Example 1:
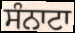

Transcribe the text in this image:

ਸੰਨਾਟਾ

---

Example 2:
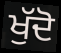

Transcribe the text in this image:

ਖੁੱਦੋ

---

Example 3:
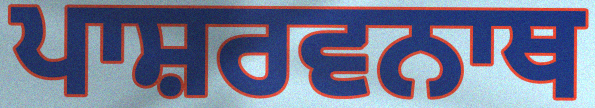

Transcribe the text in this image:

ਪਾਸ਼ਰਵਨਾਥ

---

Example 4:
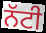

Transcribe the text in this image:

ਨੱਟੀ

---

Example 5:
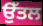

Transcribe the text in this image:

ਉੱਤਲ